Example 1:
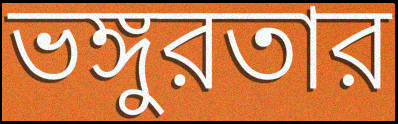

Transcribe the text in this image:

ভঙ্গুরতার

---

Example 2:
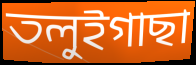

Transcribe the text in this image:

তলুইগাছা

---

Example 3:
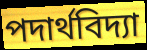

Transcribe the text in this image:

পদার্থবিদ্যা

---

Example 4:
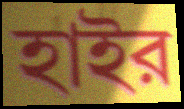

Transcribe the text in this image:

হাইর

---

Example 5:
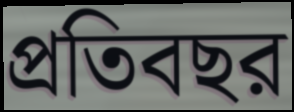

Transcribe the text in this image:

প্রতিবছর